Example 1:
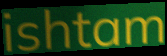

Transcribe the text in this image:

ishtam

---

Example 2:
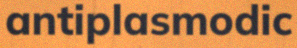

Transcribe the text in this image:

antiplasmodic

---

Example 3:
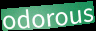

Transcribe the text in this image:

odorous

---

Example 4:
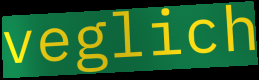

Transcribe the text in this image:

veglich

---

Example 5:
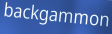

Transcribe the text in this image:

backgammon